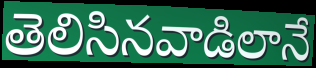
తెలిసినవాడిలానే